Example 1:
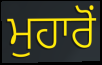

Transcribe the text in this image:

ਮੁਹਾਰੋਂ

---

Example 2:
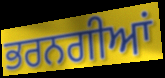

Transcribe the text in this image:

ਭਰਨਗੀਆਂ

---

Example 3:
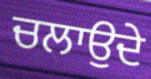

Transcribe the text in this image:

ਚਲਾਉਦੇ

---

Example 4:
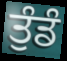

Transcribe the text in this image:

ਤੁੰਡੰ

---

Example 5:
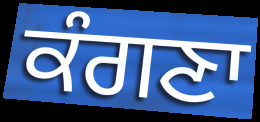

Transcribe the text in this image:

ਕੰਗਣਾ